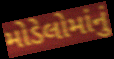
મોડેલોમાંનું